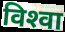
विश्‍वा